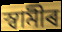
স্বামীৰ